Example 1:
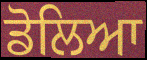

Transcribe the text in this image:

ਡੋਲਿਆ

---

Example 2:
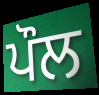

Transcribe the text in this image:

ਪੌਲ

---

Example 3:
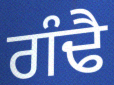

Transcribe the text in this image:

ਗੰਢੈ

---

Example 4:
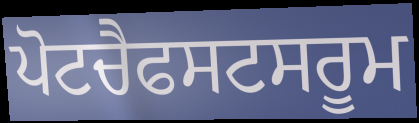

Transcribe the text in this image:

ਪੋਟਚੈਫਸਟਸਰੂਮ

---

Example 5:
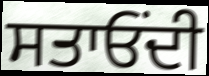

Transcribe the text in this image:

ਸਤਾਓਂਦੀ